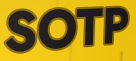
SOTP